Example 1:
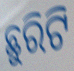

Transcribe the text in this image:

ଛୁରିଟି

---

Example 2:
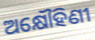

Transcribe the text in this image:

ଅକ୍ଷୌହିଣୀ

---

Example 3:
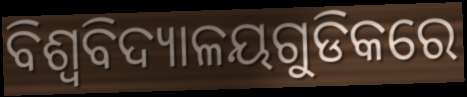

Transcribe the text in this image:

ବିଶ୍ଵବିଦ୍ୟାଳୟଗୁଡିକରେ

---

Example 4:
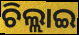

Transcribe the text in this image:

ଚିଲ୍ଲାଇ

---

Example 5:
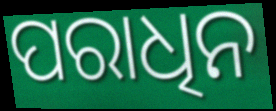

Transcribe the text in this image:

ପରାଧିନ